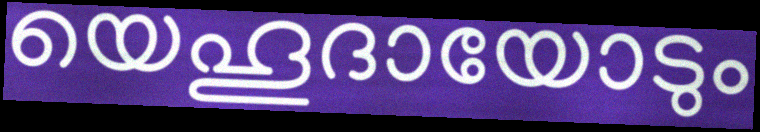
യെഹൂദായോടും